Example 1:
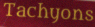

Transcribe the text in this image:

Tachyons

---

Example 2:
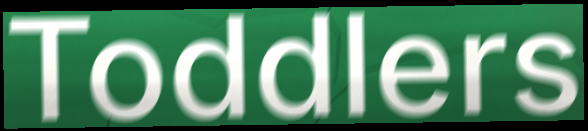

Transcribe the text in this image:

Toddlers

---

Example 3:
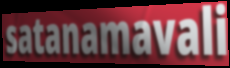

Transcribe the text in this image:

satanamavali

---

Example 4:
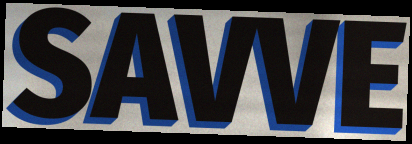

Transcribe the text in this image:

SAVVE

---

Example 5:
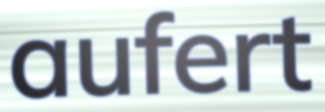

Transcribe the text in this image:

aufert